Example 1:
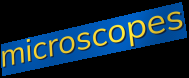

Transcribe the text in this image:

microscopes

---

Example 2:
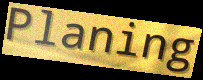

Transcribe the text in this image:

Planing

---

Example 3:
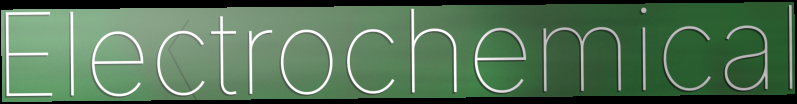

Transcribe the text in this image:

Electrochemical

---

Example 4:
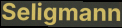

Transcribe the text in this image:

Seligmann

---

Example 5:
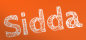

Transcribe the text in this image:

Sidda